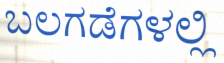
ಬಲಗಡೆಗಳಲ್ಲಿ